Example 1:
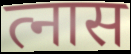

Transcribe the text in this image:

त्नास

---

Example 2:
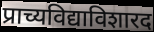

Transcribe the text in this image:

प्राच्यविद्याविशारद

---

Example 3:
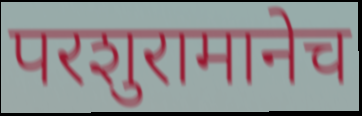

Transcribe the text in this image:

परशुरामानेच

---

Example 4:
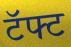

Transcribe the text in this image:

टॅफ्ट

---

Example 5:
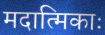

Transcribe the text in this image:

मदात्मिकाः